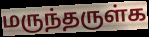
மருந்தருள்க